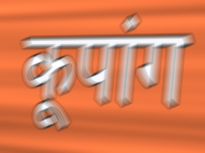
कूपांग